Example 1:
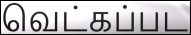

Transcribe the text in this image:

வெட்கப்பட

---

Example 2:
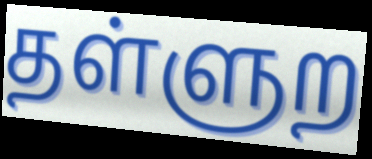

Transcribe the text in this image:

தள்ளுற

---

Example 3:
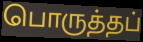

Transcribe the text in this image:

பொருத்தப்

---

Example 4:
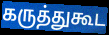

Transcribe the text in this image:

கருத்துகூட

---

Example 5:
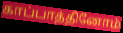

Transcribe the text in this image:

காப்பாத்தினோம்